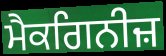
ਮੈਕਗਿਨੀਜ਼